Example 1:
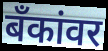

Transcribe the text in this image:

बँकांवर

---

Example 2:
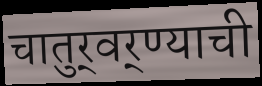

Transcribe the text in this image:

चातुर्वर्ण्याची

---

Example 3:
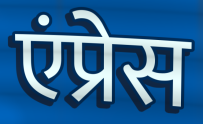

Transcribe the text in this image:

एंप्रेस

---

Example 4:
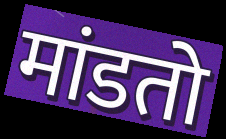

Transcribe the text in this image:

मांडतो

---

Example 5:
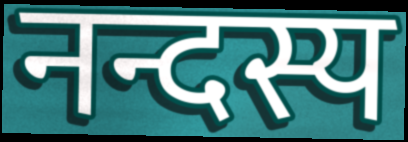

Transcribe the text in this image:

नन्दस्य